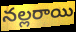
నల్లరాయి